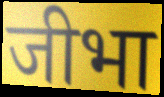
जीभा